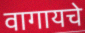
वागायचे